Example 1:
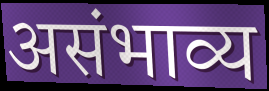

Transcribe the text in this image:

असंभाव्य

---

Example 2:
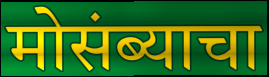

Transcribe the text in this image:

मोसंब्याचा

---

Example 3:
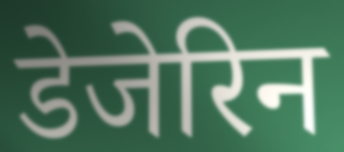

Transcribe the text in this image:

डेजेरिन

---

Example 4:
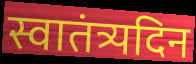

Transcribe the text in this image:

स्वातंत्र्यदिन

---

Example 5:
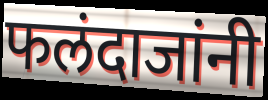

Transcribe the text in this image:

फलंदाजांनी